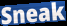
Sneak